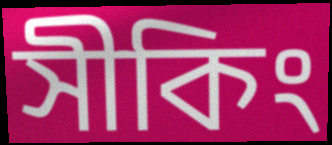
সীকিং